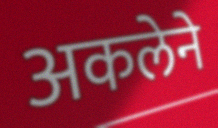
अकलेने